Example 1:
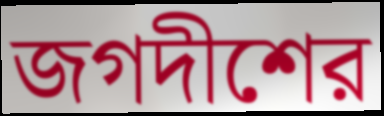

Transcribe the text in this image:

জগদীশের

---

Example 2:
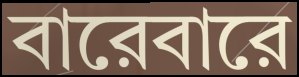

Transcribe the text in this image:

বারেবারে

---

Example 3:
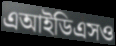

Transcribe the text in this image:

এআইডিএসও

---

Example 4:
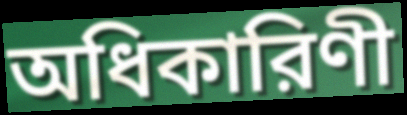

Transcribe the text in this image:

অধিকারিণী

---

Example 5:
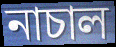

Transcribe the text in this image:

নাচাল